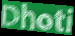
Dhoti